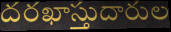
దరఖాస్తుదారుల